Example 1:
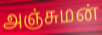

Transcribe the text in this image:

அஞ்சுமன்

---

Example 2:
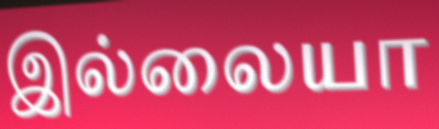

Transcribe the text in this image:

இல்லையா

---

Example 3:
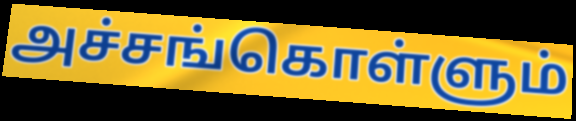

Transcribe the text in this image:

அச்சங்கொள்ளும்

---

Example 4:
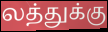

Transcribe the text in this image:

லத்துக்கு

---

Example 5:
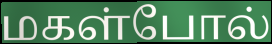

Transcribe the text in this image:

மகள்போல்